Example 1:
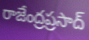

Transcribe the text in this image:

రాజేంద్రప్రసాద్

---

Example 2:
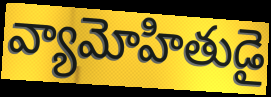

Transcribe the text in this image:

వ్యామోహితుడై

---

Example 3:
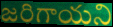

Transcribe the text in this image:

జరిగాయని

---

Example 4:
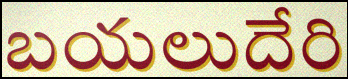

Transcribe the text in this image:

బయలుదేరి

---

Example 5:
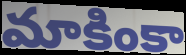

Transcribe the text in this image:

మాకింకా